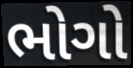
ભોગો